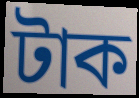
টাক